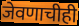
जेवणाचीही